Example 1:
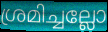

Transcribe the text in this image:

ശ്രമിച്ചല്ലോ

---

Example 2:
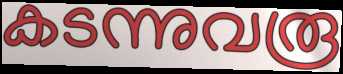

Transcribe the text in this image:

കടന്നുവരൂ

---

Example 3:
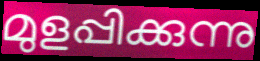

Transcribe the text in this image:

മുളപ്പിക്കുന്നു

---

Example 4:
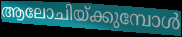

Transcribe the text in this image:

ആലോചിയ്ക്കുമ്പോൾ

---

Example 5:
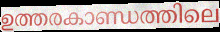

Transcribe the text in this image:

ഉത്തരകാണ്ഡത്തിലെ